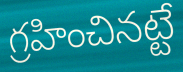
గ్రహించినట్టే